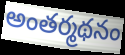
అంతర్మథనం